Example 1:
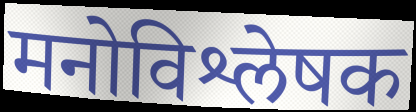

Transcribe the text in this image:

मनोविश्लेषक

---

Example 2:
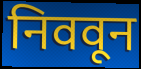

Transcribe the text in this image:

निववून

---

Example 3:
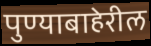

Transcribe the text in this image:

पुण्याबाहेरील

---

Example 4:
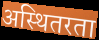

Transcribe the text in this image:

अस्थितरता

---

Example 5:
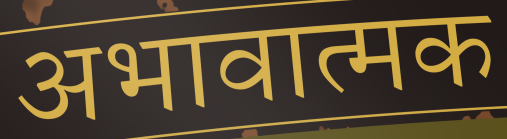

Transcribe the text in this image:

अभावात्मक